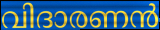
വിദാരണൻ